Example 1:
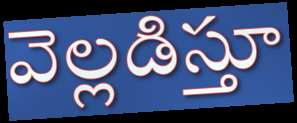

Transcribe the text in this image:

వెల్లడిస్తూ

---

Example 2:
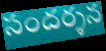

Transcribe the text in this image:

సందర్శన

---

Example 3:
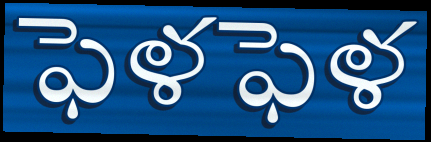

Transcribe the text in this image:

ఫెళఫెళ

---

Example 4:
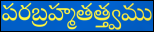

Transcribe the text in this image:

పరబ్రహ్మతత్త్వము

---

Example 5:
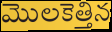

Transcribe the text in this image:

మొలకెత్తిన